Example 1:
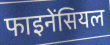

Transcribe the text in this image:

फाइनेंसियल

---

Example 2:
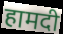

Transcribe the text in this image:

हामदी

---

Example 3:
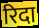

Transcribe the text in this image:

रिदा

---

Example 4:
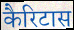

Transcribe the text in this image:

कैरिटास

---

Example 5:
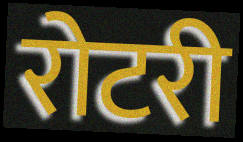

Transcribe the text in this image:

रोटरी